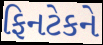
ફિનટેકને